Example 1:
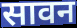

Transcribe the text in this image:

सावन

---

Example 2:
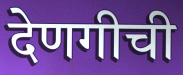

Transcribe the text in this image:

देणगीची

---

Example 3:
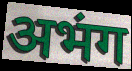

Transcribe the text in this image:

अभंग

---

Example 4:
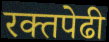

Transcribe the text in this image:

रक्तपेढी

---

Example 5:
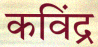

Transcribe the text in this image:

कविंद्र